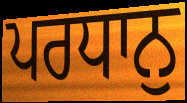
ਪਰਧਾਨੁ